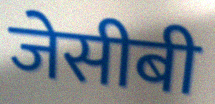
जेसीबी